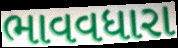
ભાવવધારા